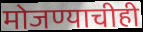
मोजण्याचीही